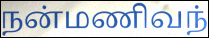
நன்மணிவந்